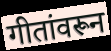
गीतांवरून